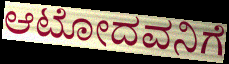
ಆಟೋದವನಿಗೆ